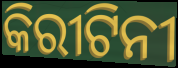
କିରୀଟିନୀ